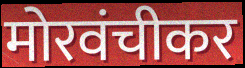
मोरवंचीकर